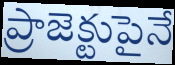
ప్రాజెక్టుపైనే